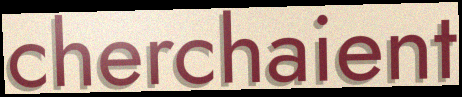
cherchaient